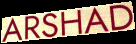
ARSHAD